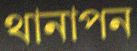
থানাপন